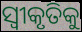
ସ୍ୱୀକୃତିକୁ